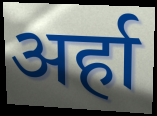
अर्हा